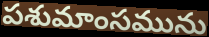
పశుమాంసమును